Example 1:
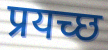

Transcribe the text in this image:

प्रयच्छ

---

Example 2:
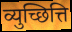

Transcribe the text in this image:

व्युच्छित्ति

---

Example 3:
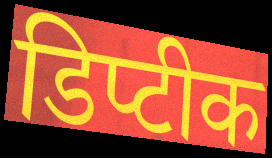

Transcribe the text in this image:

डिप्टीक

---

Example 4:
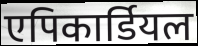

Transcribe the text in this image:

एपिकार्डियल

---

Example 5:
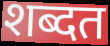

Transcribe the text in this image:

शब्दत